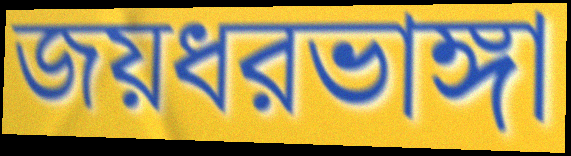
জয়ধরভাঙ্গা